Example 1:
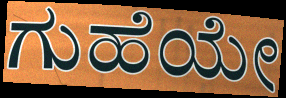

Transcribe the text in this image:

ಗುಹೆಯೇ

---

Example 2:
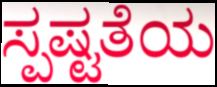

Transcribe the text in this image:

ಸ್ಪಷ್ಟತೆಯ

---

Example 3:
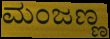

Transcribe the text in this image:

ಮಂಜಣ್ಣ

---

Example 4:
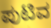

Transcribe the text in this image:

ಪುಟಿವ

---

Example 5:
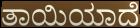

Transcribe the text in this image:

ತಾಯಿಯಾದೆ